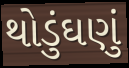
થોડુંઘણું